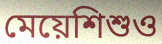
মেয়েশিশুও